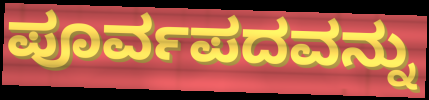
ಪೂರ್ವಪದವನ್ನು